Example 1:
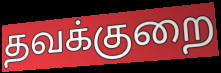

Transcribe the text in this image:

தவக்குறை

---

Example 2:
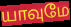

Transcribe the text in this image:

யாவுமே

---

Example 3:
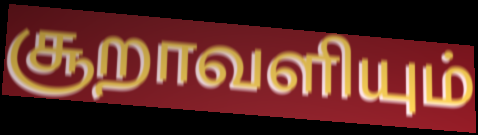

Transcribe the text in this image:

சூறாவளியும்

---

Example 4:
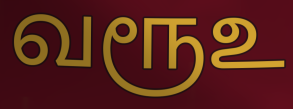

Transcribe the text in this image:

வரூஉ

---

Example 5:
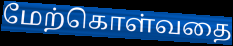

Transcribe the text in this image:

மேற்கொள்வதை